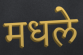
मधले